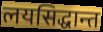
लयसिद्धान्त